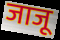
जाजू